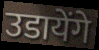
उडायेंगे